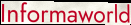
Informaworld